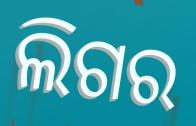
ଲିଗର